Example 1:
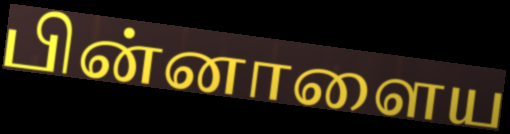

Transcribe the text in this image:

பின்னாளைய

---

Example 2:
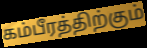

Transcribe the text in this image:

கம்பீரத்திற்கும்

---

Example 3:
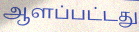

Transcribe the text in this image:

ஆளப்பட்டது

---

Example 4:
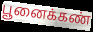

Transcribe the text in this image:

பூனைக்கண்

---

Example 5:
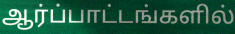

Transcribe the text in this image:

ஆர்ப்பாட்டங்களில்